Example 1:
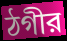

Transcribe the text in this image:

ঠগীর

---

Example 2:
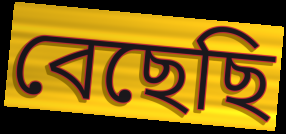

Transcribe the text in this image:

বেছেছি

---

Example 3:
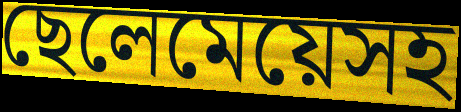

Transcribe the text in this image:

ছেলেমেয়েসহ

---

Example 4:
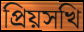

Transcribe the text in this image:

প্রিয়সখি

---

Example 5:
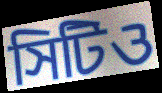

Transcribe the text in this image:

সিটিও